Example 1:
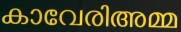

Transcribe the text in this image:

കാവേരിഅമ്മ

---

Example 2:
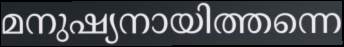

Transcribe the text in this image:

മനുഷ്യനായിത്തന്നെ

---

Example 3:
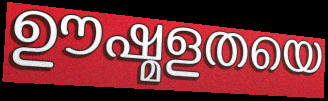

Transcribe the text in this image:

ഊഷ്മളതയെ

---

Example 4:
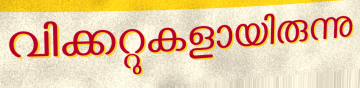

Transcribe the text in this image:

വിക്കറ്റുകളായിരുന്നു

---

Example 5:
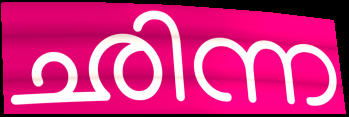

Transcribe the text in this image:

ഛിന്ന